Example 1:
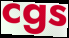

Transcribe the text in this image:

cgs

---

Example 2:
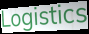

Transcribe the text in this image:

Logistics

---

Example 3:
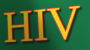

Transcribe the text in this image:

HIV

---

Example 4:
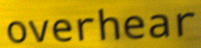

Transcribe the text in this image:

overhear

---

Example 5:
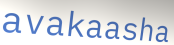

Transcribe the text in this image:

avakaasha